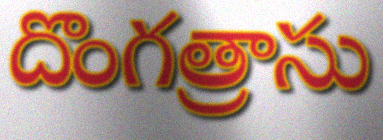
దొంగత్రాసు